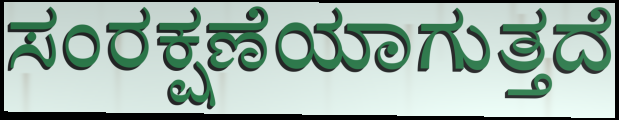
ಸಂರಕ್ಷಣೆಯಾಗುತ್ತದೆ